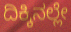
ದಿಕ್ಕಿನಲ್ಲೇ